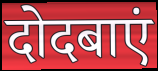
दोदबाएं